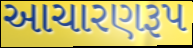
આચારણરૂપ